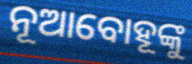
ନୂଆବୋହୂଙ୍କୁ